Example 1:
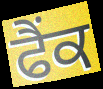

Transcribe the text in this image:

ਫੈਂਕ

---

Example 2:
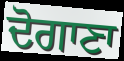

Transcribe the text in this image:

ਦੋਗਾਣਾ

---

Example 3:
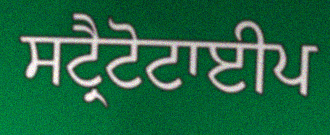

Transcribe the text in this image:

ਸਟ੍ਰੈਟੋਟਾਈਪ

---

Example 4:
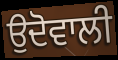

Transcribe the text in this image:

ਉਦੋਵਾਲੀ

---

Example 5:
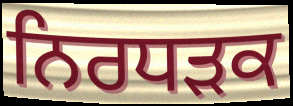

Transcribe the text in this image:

ਨਿਰਧੜਕ